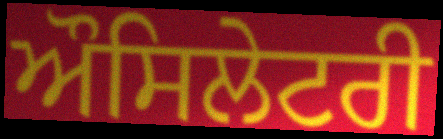
ਔਸਿਲੇਟਰੀ